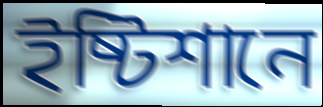
ইষ্টিশানে